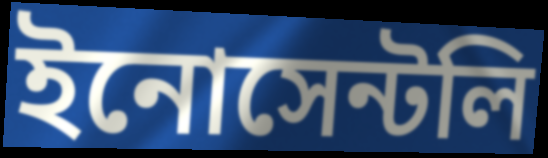
ইনোসেন্টলি